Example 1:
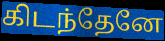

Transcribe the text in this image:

கிடந்தேனே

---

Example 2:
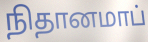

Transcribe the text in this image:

நிதானமாப்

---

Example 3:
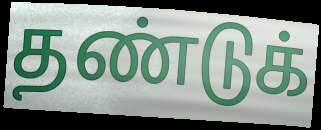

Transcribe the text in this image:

தண்டுக்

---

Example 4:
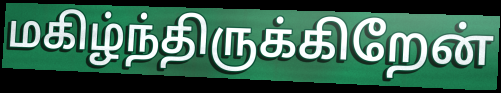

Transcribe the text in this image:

மகிழ்ந்திருக்கிறேன்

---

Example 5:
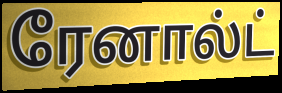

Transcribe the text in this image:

ரேனால்ட்